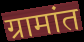
ग्रामांत